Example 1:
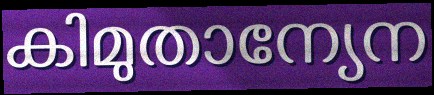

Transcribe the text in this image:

കിമുതാന്യേന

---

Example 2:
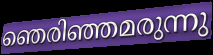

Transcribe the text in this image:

ഞെരിഞ്ഞമരുന്നു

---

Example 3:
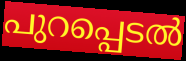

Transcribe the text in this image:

പുറപ്പെടൽ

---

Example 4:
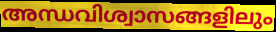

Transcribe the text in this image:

അന്ധവിശ്വാസങ്ങളിലും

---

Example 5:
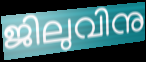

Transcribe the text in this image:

ജിലുവിനു